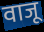
वाजू